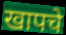
खापचे